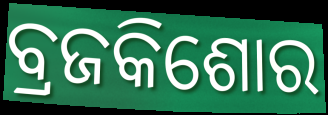
ବ୍ରଜକିଶୋର